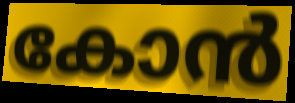
കോൻ